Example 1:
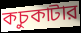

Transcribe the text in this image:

কচুকাটার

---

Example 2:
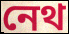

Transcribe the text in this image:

নেথ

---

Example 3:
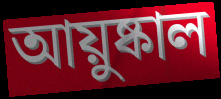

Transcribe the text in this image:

আয়ুষ্কাল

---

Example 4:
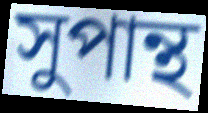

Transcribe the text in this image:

সুপান্থ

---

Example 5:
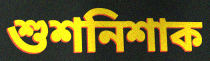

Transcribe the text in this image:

শুশনিশাক